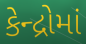
કેન્દ્રોમાં